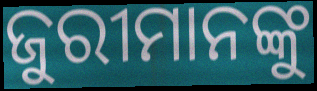
ଜୁରୀମାନଙ୍କୁ